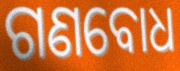
ଗଣବୋଧ